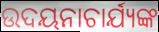
ଉଦୟନାଚାର୍ଯ୍ୟଙ୍କ